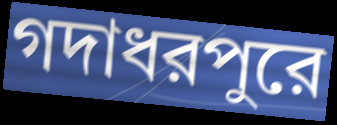
গদাধরপুরে